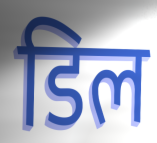
डिल